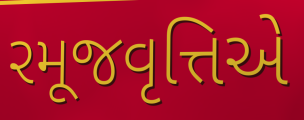
રમૂજવૃત્તિએ